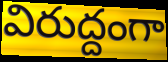
విరుద్దంగా